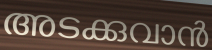
അടക്കുവാൻ